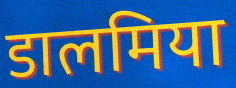
डालमिया